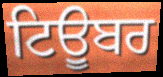
ਟਿਊੁਬਰ